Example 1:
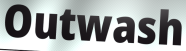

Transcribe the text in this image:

Outwash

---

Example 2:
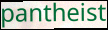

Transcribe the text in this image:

pantheist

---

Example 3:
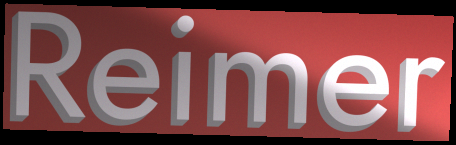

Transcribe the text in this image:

Reimer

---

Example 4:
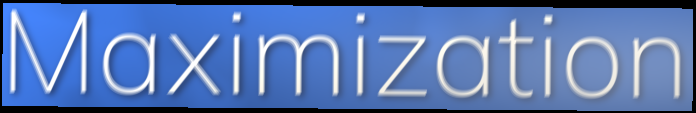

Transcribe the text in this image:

Maximization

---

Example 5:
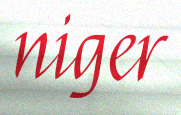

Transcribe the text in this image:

niger